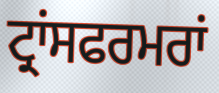
ਟ੍ਰਾਂਸਫਰਮਰਾਂ